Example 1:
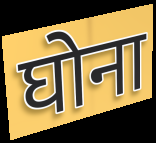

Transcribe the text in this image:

घोना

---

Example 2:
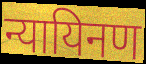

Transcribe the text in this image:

न्यायिनण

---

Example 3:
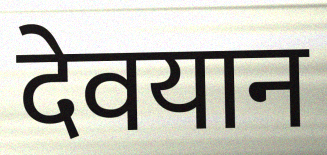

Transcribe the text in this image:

देवयान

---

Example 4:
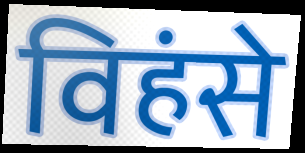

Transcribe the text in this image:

विहंसे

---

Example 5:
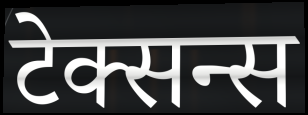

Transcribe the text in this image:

टेक्सन्स